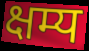
क्षम्य